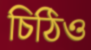
চিঠিও